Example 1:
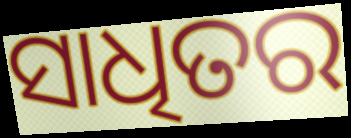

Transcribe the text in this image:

ସାଧିତର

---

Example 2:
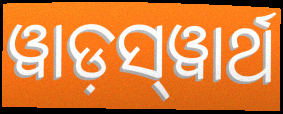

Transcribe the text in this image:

ୱାଡ଼ସ୍‌ୱାର୍ଥ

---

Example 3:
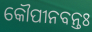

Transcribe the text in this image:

କୌପୀନବନ୍ତଃ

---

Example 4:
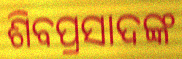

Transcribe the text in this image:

ଶିବପ୍ରସାଦଙ୍କ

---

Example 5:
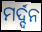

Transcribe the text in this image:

ମର୍ଦ୍ଦନ